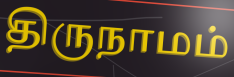
திருநாமம்